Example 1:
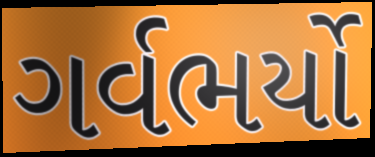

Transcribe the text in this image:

ગર્વભર્યો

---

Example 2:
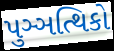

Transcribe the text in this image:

પુઞ્ઞત્થિકો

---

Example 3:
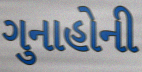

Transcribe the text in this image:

ગુનાહોની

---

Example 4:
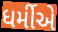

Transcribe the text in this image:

ધર્મીએ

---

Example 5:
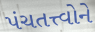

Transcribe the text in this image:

પંચતત્ત્વોને